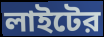
লাইটের